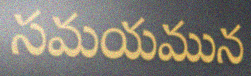
సమయమున